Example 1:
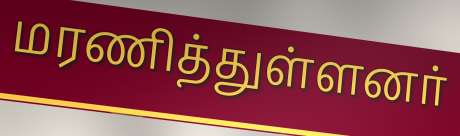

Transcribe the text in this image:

மரணித்துள்ளனர்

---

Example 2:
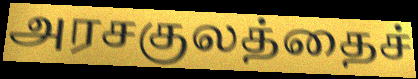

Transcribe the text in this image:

அரசகுலத்தைச்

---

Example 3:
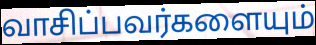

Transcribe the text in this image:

வாசிப்பவர்களையும்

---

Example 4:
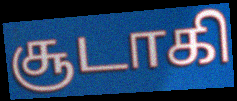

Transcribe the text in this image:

சூடாகி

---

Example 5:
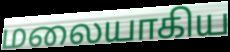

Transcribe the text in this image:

மலையாகிய